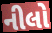
નીલો